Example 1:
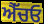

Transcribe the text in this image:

ਐੱਚਓ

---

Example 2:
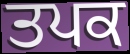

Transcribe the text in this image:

ਤਪਕ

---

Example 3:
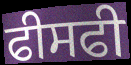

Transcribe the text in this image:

ਫੀਸਫੀ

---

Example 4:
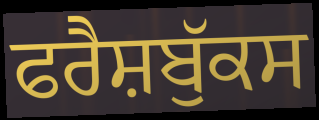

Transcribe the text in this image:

ਫਰੈਸ਼ਬੁੱਕਸ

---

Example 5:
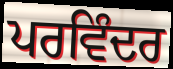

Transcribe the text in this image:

ਪਰਵਿੰਦਰ